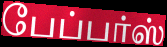
பேப்பர்ஸ்